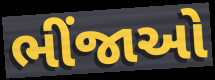
ભીંજાઓ